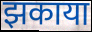
झकाया